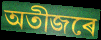
অতীজৰে